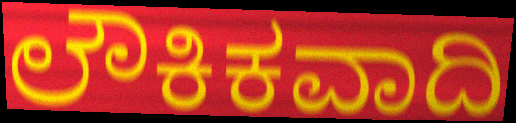
ಲೌಕಿಕವಾದಿ